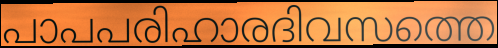
പാപപരിഹാരദിവസത്തെ